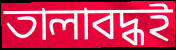
তালাবদ্ধই